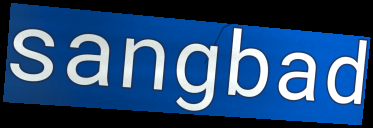
sangbad